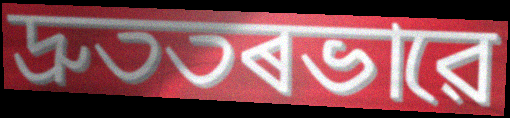
দ্ৰুততৰভাৱে